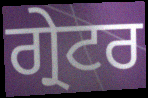
ਗ੍ਰੇਟਰ